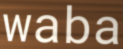
waba